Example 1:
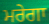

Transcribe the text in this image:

ਮਰੇਗਾ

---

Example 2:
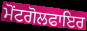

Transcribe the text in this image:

ਮੋਂਟਗੋਲਫਾਇਰ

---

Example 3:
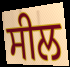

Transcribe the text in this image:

ਸੀਲ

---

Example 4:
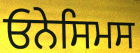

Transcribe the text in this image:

ਓਨੇਸਿਮਸ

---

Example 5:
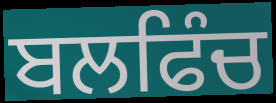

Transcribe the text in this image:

ਬਲਫਿੰਚ